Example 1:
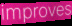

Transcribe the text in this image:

improves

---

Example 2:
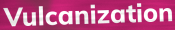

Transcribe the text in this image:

Vulcanization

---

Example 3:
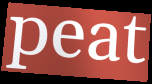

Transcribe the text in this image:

peat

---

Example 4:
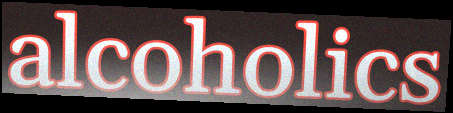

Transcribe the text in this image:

alcoholics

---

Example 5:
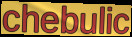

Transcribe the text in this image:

chebulic